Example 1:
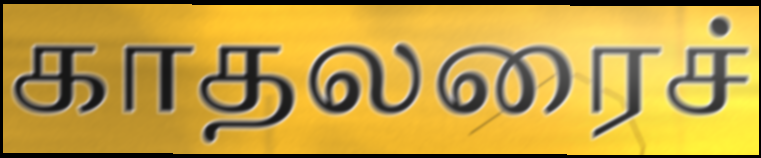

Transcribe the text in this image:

காதலரைச்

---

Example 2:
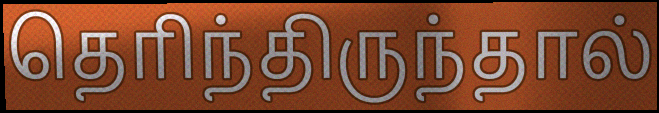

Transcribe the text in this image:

தெரிந்திருந்தால்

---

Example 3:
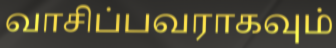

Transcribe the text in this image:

வாசிப்பவராகவும்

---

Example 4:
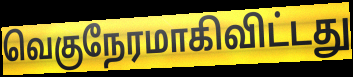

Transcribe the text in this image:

வெகுநேரமாகிவிட்டது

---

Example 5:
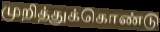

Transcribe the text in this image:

முறித்துக்கொண்டு